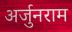
अर्जुनराम